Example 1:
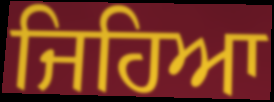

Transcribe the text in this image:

ਜਿਹਿਆ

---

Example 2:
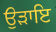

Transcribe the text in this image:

ਉੜਾਇ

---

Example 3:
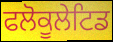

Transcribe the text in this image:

ਫਲੋਕੂਲੇਟਿਡ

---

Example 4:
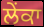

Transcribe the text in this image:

ਲੇਂਕਾ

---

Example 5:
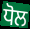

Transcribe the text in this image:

ਧੋਲ